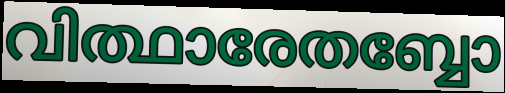
വിത്ഥാരേതബ്ബോ